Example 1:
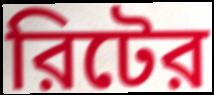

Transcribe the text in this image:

রিটের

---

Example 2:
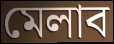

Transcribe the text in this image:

মেলাব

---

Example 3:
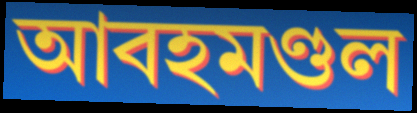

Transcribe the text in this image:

আবহমণ্ডল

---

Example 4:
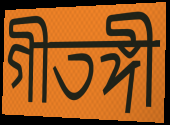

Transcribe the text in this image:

গীতঙ্গী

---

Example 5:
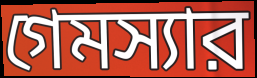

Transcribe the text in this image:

গেমস্যার